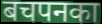
बचपनका